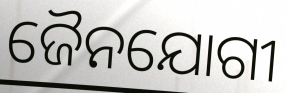
ଜୈନଯୋଗୀ